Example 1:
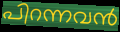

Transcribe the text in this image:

പിറന്നവൻ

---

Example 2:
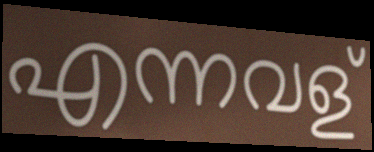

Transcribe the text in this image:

എന്നവള്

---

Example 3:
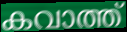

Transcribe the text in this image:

കവാത്ത്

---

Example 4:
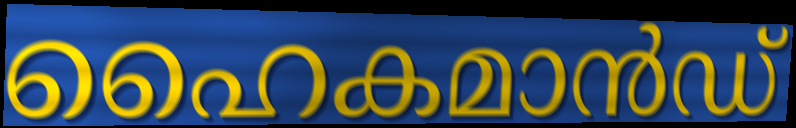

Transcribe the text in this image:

ഹൈകമാൻഡ്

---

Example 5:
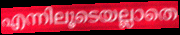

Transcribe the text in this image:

എന്നിലൂടെയല്ലാതെ